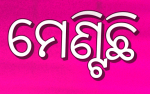
ମେଣ୍ଟିଛି